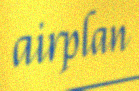
airplan